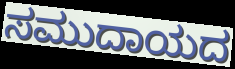
ಸಮುದಾಯದ